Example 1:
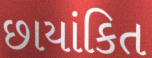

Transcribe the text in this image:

છાયાંકિત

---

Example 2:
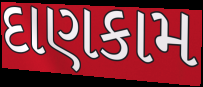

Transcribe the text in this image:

દાણકામ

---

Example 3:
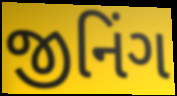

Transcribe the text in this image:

જીનિંગ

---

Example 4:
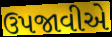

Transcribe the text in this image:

ઉપજાવીએ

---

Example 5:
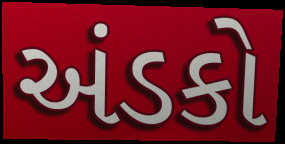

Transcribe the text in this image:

અંડકો